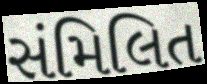
સંમિલિત